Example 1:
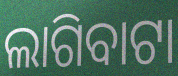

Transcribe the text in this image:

ଲାଗିବାଟା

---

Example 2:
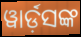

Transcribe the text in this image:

ୱାର୍ଡ଼ସଙ୍କ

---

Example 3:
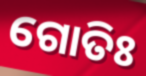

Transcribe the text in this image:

ଗୋତିଃ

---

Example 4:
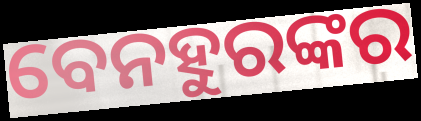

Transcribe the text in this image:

ବେନହୁରଙ୍କର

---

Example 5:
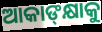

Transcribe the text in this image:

ଆକାଙ୍‍କ୍ଷାକୁ